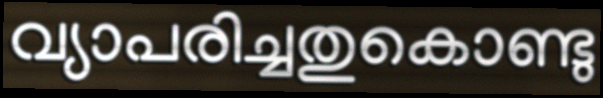
വ്യാപരിച്ചതുകൊണ്ടു